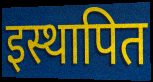
इस्थापित